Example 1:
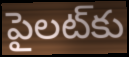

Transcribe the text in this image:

పైలట్‌కు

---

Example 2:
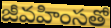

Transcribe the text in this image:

జీవహింసతో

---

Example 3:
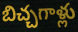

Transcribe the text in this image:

బిచ్చగాళ్లు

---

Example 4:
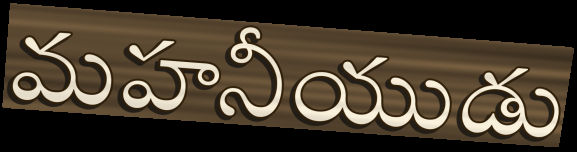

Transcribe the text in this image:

మహనీయుడు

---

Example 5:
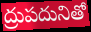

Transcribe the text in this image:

ద్రుపదునితో